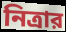
নিত্রার